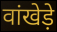
वांखेड़े